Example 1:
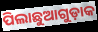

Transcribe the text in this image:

ପିଲାଛୁଆଗୁଡ଼ାକ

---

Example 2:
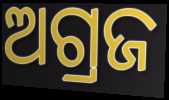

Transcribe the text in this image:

ଅଗ୍ରଜ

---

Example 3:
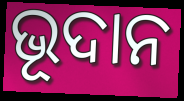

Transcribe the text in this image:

ଭୂଦାନ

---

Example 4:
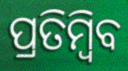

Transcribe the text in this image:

ପ୍ରତିମ୍ବିବ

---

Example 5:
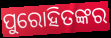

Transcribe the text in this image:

ପୁରୋହିତଙ୍କର